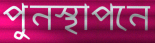
পুনস্থাপনে